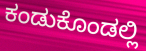
ಕಂಡುಕೊಂಡಲ್ಲಿ